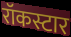
रॉकस्टार